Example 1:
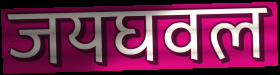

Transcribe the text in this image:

जयघवल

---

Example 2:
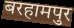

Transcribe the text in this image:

बरहामपुर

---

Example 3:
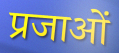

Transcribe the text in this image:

प्रजाओं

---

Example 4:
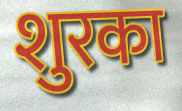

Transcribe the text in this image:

शुरका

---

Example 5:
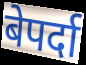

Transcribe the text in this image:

बेपर्दा